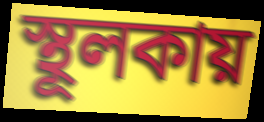
স্থূলকায়